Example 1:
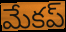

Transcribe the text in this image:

మేకప్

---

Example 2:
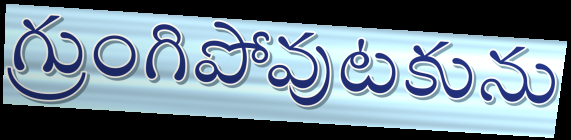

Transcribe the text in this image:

గ్రుంగిపోవుటకును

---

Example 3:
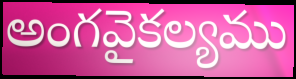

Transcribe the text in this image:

అంగవైకల్యము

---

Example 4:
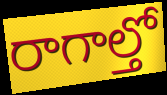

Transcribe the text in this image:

రాగాల్తో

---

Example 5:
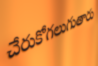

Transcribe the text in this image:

చేరుకోగలుగుతారు